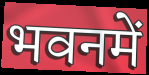
भवनमें